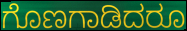
ಗೊಣಗಾಡಿದರೂ